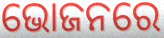
ଭୋଜନରେ